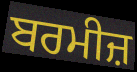
ਬਰਮੀਜ਼